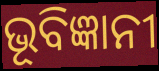
ଭୂବିଜ୍ଞାନୀ